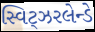
સ્વિટ્ઝરલેન્ડે